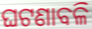
ଘଟଣାବଳି